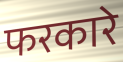
फरकारे